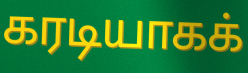
கரடியாகக்